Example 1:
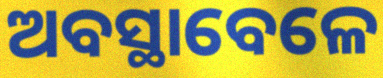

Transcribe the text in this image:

ଅବସ୍ଥାବେଳେ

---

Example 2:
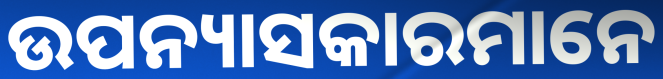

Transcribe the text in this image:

ଉପନ୍ୟାସକାରମାନେ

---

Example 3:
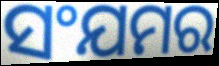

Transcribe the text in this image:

ସଂଯମର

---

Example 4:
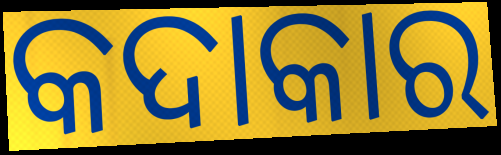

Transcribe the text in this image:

କଦାକାର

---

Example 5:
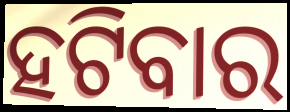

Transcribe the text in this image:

ହଟିବାର